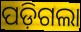
ପଡ଼ିଗଲା